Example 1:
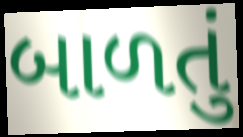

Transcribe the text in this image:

બાળતું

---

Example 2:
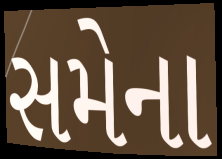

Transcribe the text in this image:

સમેના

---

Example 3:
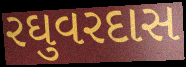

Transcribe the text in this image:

રઘુવરદાસ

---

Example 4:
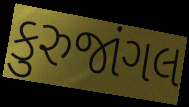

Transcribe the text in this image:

કુરુજાંગલ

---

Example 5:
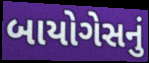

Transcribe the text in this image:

બાયોગેસનું